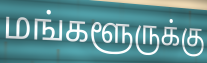
மங்களூருக்கு